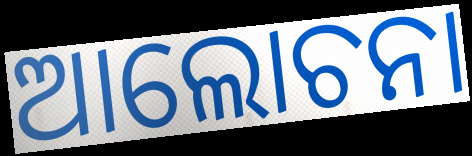
ଆଲୋଚନା